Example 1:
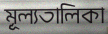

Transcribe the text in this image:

মূল্যতালিকা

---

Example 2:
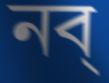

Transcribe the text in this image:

নব্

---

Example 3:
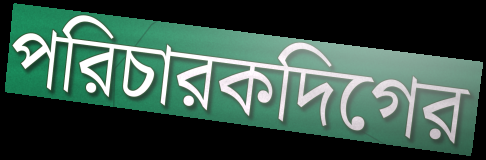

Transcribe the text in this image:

পরিচারকদিগের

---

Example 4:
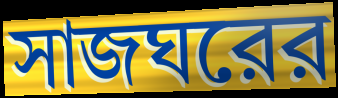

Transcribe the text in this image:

সাজঘরের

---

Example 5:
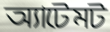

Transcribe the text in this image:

অ্যাটেমট